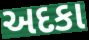
અદકા